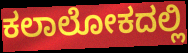
ಕಲಾಲೋಕದಲ್ಲಿ